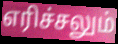
எரிச்சலும்